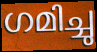
ഗമിച്ചു